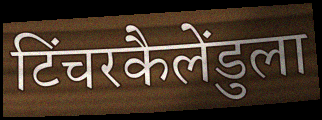
टिंचरकैलेंडुला